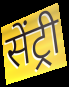
सेंट्री